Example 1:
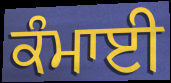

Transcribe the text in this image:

ਕੰਮਾਈ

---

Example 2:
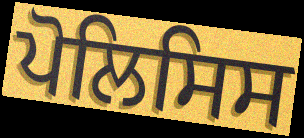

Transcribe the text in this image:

ਪੋਲਿਸਿਸ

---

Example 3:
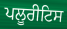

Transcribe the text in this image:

ਪਲੂਰੀਟਿਸ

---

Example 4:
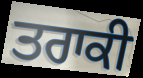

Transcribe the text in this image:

ਤਰਾਕੀ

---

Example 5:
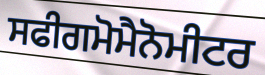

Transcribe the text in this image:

ਸਫੀਗਮੋਮੈਨੋਮੀਟਰ